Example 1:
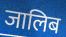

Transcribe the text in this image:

जालिब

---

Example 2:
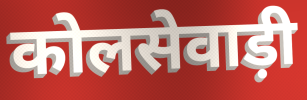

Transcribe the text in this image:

कोलसेवाड़ी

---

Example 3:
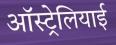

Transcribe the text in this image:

ऑस्‍ट्रेलियाई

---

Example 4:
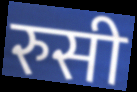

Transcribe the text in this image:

रुसी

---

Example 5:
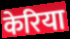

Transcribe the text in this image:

केरिया